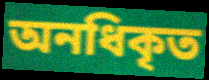
অনধিকৃত